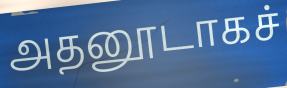
அதனூடாகச்